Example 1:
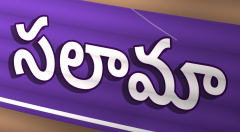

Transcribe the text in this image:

సలామా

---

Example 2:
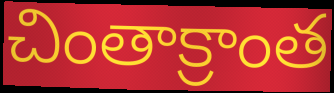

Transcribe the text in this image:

చింతాక్రాంత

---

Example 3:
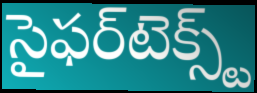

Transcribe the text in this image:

సైఫర్‌టెక్స్ట్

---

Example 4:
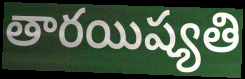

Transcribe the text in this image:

తారయిష్యతి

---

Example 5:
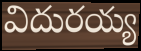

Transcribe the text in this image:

విదురయ్య